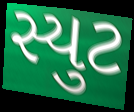
સ્યુટ